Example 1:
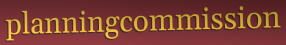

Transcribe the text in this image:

planningcommission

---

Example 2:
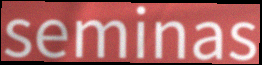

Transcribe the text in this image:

seminas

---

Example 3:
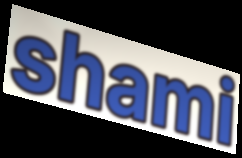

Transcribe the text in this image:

shami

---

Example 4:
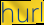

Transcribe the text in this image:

hurl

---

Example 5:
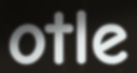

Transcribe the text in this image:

otle